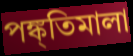
পঙ্ক্তিমালা